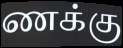
ணக்கு